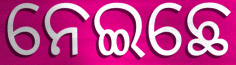
ନେଇଛେ